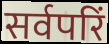
सर्वपरिं